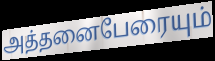
அத்தனைபேரையும்